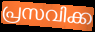
പ്രസവിക്ക